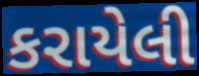
કરાયેલી